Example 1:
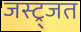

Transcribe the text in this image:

जस्ट्र्जत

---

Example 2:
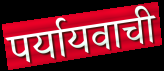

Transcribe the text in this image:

पर्यायवाची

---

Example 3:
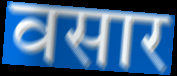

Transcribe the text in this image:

वसार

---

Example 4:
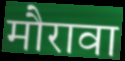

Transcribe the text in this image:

मौरावा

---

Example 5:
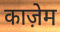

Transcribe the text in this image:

काज़ेम